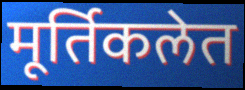
मूर्तिकलेत